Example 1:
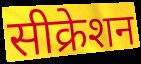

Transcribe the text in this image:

सीक्रेशन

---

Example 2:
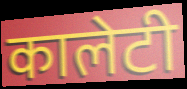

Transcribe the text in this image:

कालेटी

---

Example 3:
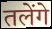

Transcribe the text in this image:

तलेंगे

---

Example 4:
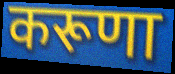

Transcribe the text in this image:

करूणा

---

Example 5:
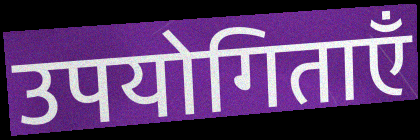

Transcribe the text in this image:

उपयोगिताएँ